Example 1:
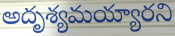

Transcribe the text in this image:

అదృశ్యమయ్యారని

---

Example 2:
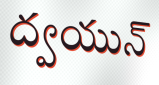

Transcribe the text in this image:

ద్వయున్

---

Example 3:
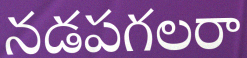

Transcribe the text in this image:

నడపగలరా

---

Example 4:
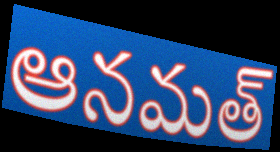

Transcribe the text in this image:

ఆనమత్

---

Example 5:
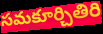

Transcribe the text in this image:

సమకూర్చితిరి